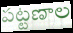
పట్టణాల